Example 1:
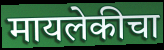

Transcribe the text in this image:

मायलेकीचा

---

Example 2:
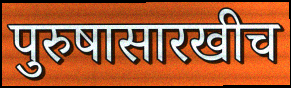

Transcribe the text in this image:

पुरुषासारखीच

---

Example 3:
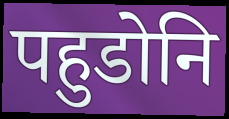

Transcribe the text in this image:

पहुडोनि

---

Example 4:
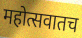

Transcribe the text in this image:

महोत्सवातच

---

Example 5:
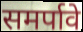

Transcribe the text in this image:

समर्पावे